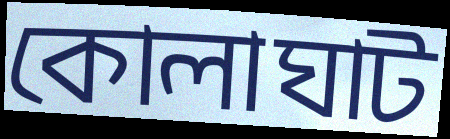
কোলাঘাট